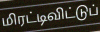
மிரட்டிவிட்டுப்